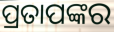
ପ୍ରତାପଙ୍କର